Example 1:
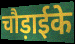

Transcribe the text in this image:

चौड़ाईके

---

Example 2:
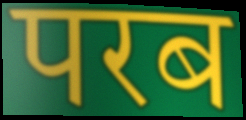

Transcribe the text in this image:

परब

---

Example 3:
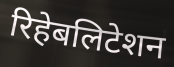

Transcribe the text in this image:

रिहेबलिटेशन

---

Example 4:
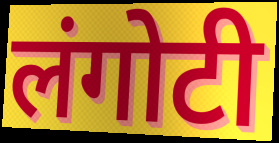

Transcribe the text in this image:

लंगोटी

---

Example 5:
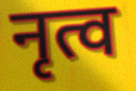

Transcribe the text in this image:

नृत्व